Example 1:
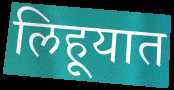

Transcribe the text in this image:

लिहूयात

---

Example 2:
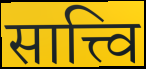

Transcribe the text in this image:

सात्त्वि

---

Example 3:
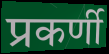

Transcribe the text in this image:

प्रकर्णी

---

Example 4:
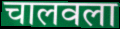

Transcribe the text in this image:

चालवला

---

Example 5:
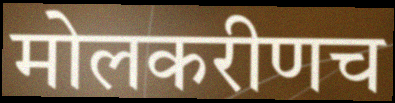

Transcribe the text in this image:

मोलकरीणच